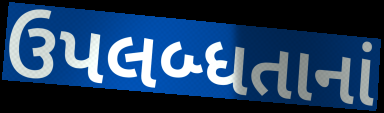
ઉપલબ્ધતાનાં